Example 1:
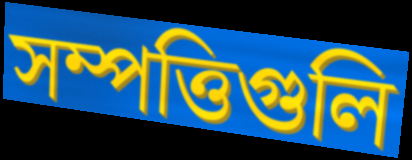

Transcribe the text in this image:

সম্পত্তিগুলি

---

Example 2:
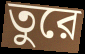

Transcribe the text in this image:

তুরে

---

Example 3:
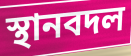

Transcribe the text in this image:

স্থানবদল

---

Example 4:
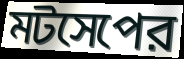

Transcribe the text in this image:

মটসেপের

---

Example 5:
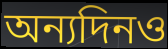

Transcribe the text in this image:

অন্যদিনও